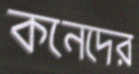
কনেদের